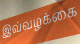
இவ்வழக்கை